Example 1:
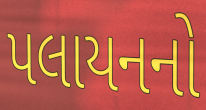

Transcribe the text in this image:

પલાયનનો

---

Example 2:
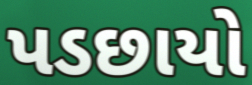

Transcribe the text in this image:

પડછાયો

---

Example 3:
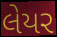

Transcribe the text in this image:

લેયર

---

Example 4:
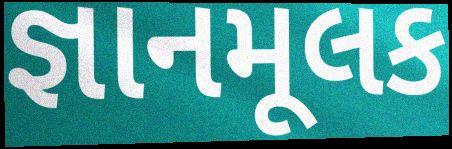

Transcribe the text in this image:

જ્ઞાનમૂલક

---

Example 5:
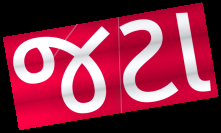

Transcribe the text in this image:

જટા